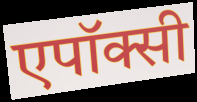
एपॉक्सी